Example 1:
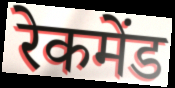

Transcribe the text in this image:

रेकमेंड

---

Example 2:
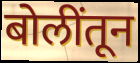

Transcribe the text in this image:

बोलींतून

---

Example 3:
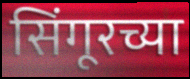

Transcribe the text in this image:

सिंगूरच्या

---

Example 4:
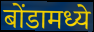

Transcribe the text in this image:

बोंडामध्ये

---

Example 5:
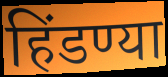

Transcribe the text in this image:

हिंडण्या